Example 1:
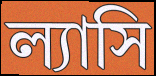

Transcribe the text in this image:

ল্যাসি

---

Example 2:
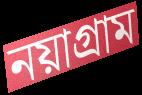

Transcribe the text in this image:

নয়াগ্রাম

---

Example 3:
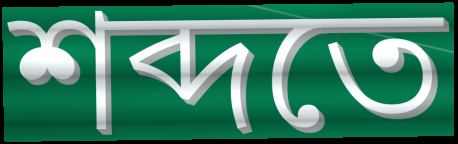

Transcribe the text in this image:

শব্দতে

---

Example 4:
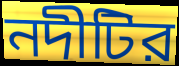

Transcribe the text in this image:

নদীটির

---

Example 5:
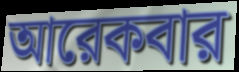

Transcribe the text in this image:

আরেকবার